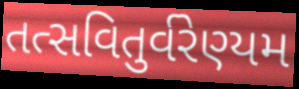
તત્સવિતુર્વરેણ્યમ